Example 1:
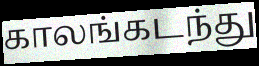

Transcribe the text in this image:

காலங்கடந்து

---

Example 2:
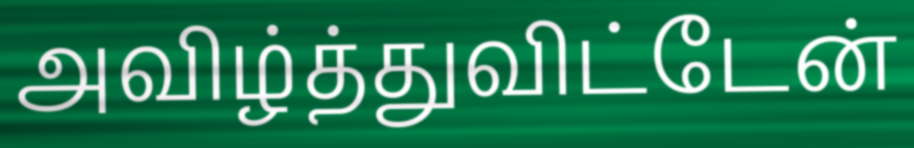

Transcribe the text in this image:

அவிழ்த்துவிட்டேன்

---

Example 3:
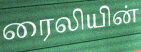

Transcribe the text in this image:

ரைலியின்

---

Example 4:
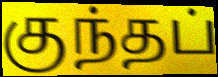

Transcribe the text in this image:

குந்தப்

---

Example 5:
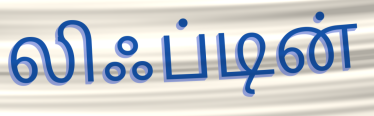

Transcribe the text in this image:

லிஃப்டின்